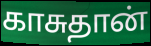
காசுதான்